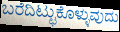
ಬರೆದಿಟ್ಟುಕೊಳ್ಳುವುದು